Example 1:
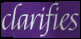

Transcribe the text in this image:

clarifies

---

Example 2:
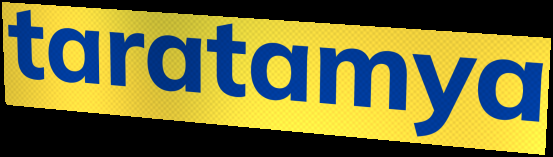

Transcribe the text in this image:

taratamya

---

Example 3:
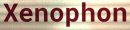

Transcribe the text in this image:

Xenophon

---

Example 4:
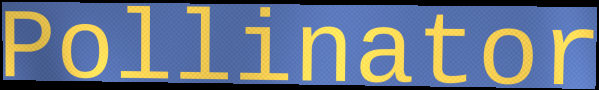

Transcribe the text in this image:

Pollinator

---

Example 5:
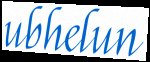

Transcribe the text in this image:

ubhelun